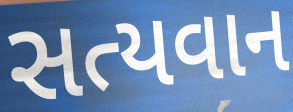
સત્યવાન